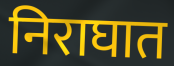
निराघात